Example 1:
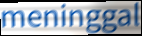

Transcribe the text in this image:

meninggal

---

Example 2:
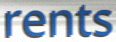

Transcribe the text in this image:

rents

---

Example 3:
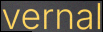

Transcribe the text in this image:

vernal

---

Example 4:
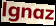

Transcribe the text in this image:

Ignaz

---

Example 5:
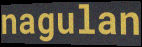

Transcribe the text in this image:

nagulan